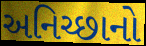
અનિચ્છાનો